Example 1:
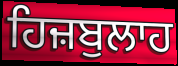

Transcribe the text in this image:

ਹਿਜ਼ਬੁਲਾਹ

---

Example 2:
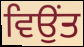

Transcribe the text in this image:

ਵਿਉਂਤ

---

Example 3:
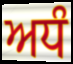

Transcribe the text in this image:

ਅਧੰ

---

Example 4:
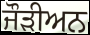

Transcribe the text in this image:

ਜੌੜੀਅਨ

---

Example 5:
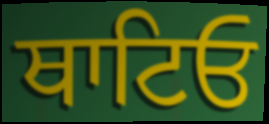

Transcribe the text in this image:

ਥਾਟਿਓ